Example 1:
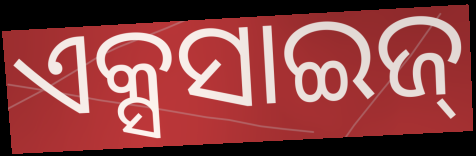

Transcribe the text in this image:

ଏକ୍ସସାଇଜ୍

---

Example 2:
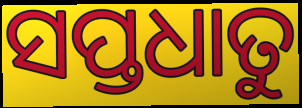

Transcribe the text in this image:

ସପ୍ତଧାତୁ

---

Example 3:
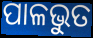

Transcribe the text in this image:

ପାଳଭୁତ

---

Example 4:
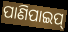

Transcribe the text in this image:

ପାଣିପାଇପ୍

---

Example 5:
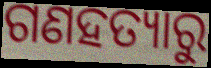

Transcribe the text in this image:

ଗଣହତ୍ୟାରୁ